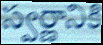
స్వర్ణానికి